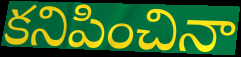
కనిపించినా